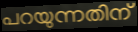
പറയുന്നതിന്